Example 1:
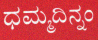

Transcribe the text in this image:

ಧಮ್ಮದಿನ್ನಂ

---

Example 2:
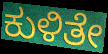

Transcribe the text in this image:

ಕುಳಿತೇ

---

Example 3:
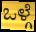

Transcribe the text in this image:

ಒಳ್ಗೆ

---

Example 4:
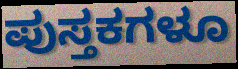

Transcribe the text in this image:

ಪುಸ್ತಕಗಳೂ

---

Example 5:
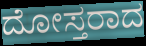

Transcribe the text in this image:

ದೋಸ್ತರಾದ